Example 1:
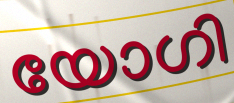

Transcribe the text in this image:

യോഗി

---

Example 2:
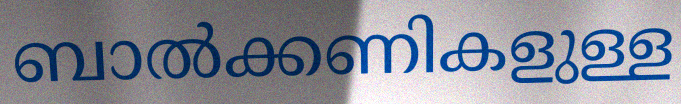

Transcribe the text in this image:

ബാൽക്കണികളുള്ള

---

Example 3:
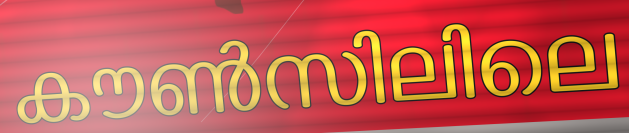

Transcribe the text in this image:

കൗൺസിലിലെ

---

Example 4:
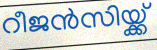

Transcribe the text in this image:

റീജൻസിയ്ക്ക്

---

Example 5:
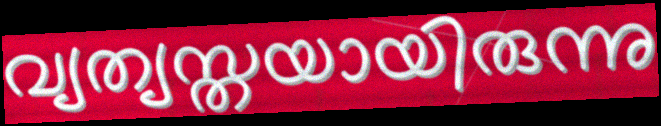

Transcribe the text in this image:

വ്യത്യസ്തയായിരുന്നു